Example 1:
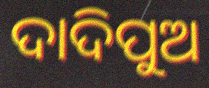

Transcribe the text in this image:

ଦାଦିପୁଅ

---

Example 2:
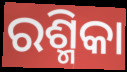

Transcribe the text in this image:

ରଶ୍ମିକା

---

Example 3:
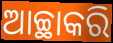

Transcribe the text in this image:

ଆଚ୍ଛାକରି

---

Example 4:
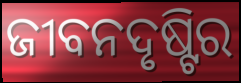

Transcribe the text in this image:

ଜୀବନଦୃଷ୍ଟିର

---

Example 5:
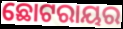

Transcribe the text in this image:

ଛୋଟରାୟର